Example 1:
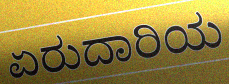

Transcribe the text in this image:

ಏರುದಾರಿಯ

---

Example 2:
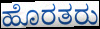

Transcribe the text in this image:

ಹೊರತರು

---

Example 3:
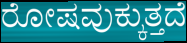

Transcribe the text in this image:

ರೋಷವುಕ್ಕುತ್ತದೆ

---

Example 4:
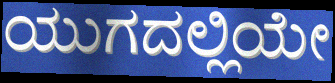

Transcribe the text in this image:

ಯುಗದಲ್ಲಿಯೇ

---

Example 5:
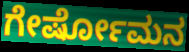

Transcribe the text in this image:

ಗೇರ್ಷೋಮನ